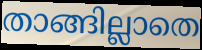
താങ്ങില്ലാതെ